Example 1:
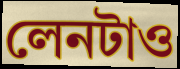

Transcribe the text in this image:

লেনটাও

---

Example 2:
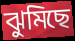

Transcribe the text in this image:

ঝুমিছে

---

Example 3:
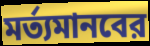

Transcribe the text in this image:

মর্ত্যমানবের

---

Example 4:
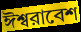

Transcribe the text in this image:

ঈশ্বরাবেশ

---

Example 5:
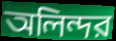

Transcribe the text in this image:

অলিন্দর